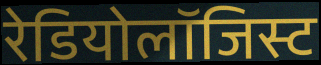
रेडियोलॉजिस्ट